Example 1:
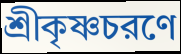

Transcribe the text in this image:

শ্রীকৃষ্ণচরণে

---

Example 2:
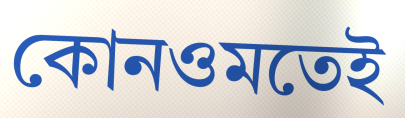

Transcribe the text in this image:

কোনওমতেই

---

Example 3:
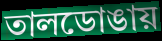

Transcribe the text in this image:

তালডোঙায়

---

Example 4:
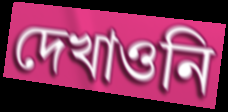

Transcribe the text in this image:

দেখাওনি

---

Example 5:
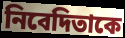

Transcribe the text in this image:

নিবেদিতাকে